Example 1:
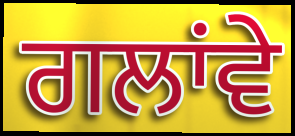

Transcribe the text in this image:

ਗਲਾਂਵੇ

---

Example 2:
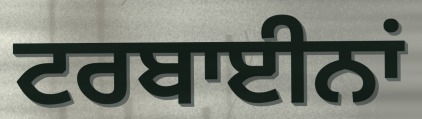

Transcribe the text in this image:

ਟਰਬਾਈਨਾਂ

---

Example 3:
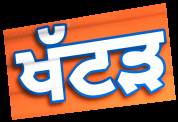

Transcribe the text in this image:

ਖੱਟੜ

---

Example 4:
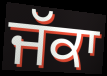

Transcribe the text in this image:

ਜੱਕਾ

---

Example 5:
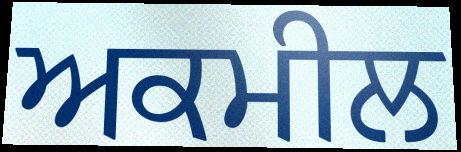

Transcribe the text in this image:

ਅਕਮੀਲ